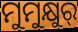
ମୁମୁକ୍ଷୁର୍